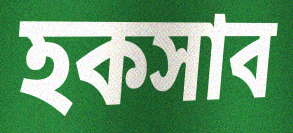
হকসাব